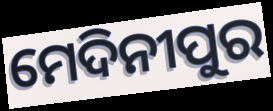
ମେଦିନୀପୁର